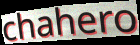
chahero